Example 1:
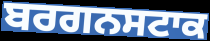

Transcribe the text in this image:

ਬਰਗਨਸਟਾਕ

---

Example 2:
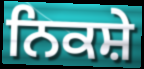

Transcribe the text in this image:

ਨਿਕਸ਼ੇ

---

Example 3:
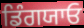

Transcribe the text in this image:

ਡਿੰਗਯਾਓ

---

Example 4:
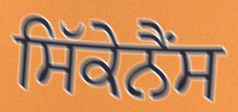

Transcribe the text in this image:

ਸਿੱਕੇਨੈਂਸ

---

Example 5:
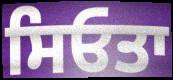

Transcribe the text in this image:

ਸਿਓਤਾ